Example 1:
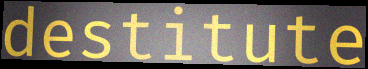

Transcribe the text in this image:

destitute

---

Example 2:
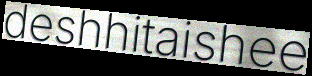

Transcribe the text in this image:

deshhitaishee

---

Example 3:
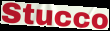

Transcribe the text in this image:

Stucco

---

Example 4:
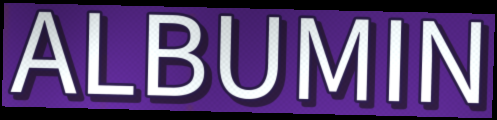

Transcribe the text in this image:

ALBUMIN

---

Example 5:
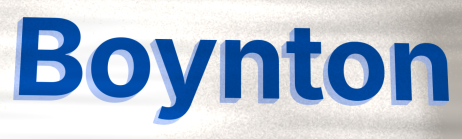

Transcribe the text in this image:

Boynton